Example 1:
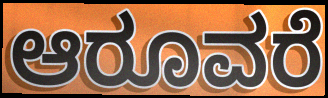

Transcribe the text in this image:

ಆರೂವರೆ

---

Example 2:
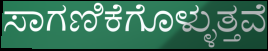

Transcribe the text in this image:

ಸಾಗಣಿಕೆಗೊಳ್ಳುತ್ತವೆ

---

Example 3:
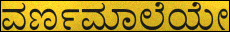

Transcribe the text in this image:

ವರ್ಣಮಾಲೆಯೇ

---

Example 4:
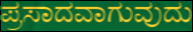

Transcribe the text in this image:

ಪ್ರಸಾದವಾಗುವುದು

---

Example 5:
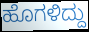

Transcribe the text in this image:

ಹೊಗಳಿದ್ದು